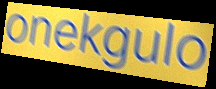
onekgulo